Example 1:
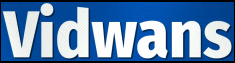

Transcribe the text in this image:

Vidwans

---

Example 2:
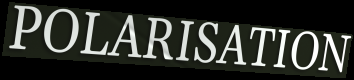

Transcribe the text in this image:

POLARISATION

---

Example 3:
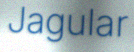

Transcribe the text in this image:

Jagular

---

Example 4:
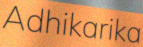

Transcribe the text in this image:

Adhikarika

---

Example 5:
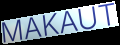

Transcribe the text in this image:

MAKAUT